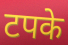
टपके